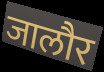
जालौर